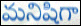
మనిషిగా